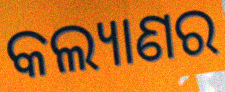
କଲ୍ୟାଣର